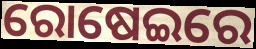
ରୋଷେଇରେ